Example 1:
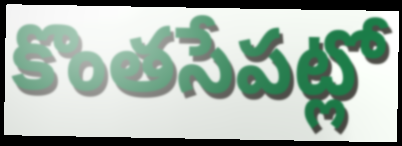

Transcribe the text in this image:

కొంతసేపట్లో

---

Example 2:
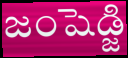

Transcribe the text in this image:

జంషెడ్జి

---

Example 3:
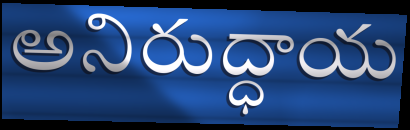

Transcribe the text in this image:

అనిరుద్ధాయ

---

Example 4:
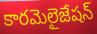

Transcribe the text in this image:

కారమెలైజేషన్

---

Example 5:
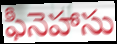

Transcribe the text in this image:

ఫీనెహాసు